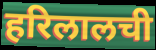
हरिलालची